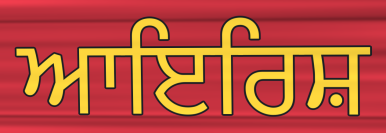
ਆਇਰਿਸ਼